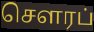
செளரப்